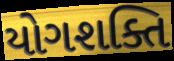
યોગશક્તિ